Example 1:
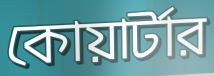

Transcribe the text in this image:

কোয়ার্টার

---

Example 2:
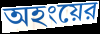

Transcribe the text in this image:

অহংয়ের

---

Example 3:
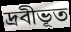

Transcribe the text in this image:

দ্রবীভূত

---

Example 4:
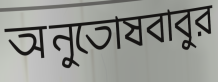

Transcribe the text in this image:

অনুতোষবাবুর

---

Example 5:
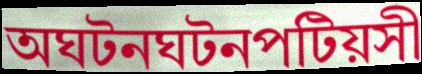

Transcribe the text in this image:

অঘটনঘটনপটিয়সী